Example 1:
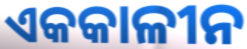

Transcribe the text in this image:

ଏକକାଳୀନ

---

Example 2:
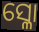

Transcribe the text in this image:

ସ୍ଳୋ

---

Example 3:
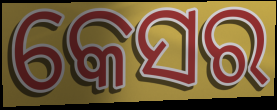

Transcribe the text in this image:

କେସର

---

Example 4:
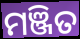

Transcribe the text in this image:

ମଞ୍ଜିତ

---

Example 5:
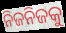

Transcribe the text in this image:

ନିଜନିଜକୁ